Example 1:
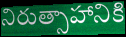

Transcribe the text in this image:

నిరుత్సాహానికి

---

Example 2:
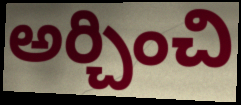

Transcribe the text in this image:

అర్చించి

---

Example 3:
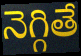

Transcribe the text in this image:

నెగ్గితే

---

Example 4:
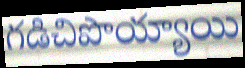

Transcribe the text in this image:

గడిచిపొయ్యాయి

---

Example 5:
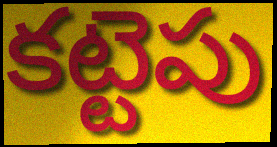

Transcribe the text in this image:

కట్టెపు